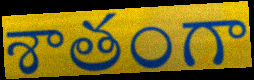
శాతంగా